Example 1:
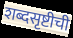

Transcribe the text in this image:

शब्दसृष्टीची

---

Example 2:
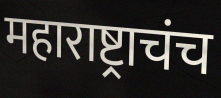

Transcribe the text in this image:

महाराष्ट्राचंच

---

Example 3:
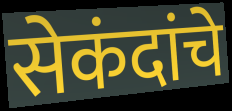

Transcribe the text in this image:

सेकंदांचे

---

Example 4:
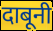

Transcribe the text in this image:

दाबूनी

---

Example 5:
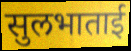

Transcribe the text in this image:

सुलभाताई